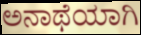
ಅನಾಥೆಯಾಗಿ